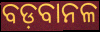
ବଡ଼ବାନଳ